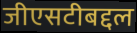
जीएसटीबद्दल